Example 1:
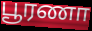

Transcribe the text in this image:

பூரணா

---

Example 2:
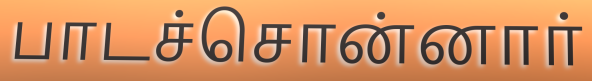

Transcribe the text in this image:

பாடச்சொன்னார்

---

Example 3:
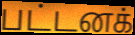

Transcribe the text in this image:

பட்டனக்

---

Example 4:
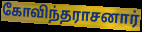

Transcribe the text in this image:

கோவிந்தராசனார்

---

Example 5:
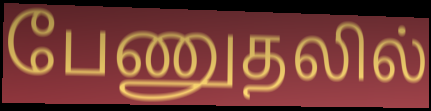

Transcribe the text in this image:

பேணுதலில்